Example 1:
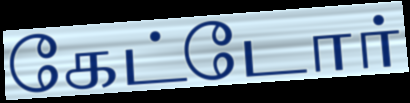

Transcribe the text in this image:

கேட்டோர்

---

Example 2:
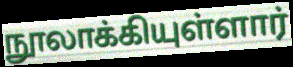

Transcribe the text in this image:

நூலாக்கியுள்ளார்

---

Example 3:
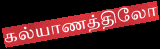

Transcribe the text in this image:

கல்யாணத்திலோ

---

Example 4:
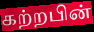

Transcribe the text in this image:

கற்றபின்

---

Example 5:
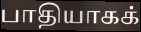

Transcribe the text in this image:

பாதியாகக்